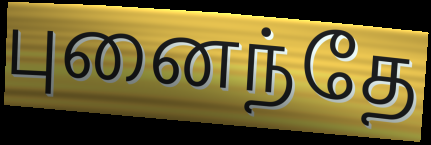
புனைந்தே